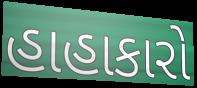
હાહાકારો